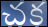
చక